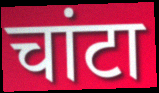
चांटा